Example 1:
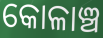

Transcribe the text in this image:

କୋଳାଞ୍ଚ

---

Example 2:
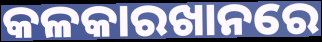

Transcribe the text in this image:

କଳକାରଖାନରେ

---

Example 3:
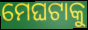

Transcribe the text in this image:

ମେଘଟାକୁ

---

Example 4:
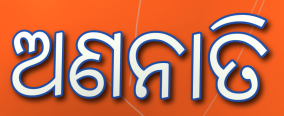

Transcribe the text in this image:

ଅଣନାତି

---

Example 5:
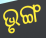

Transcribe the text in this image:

ଭୃଙ୍ଗ